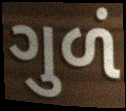
ગુળં